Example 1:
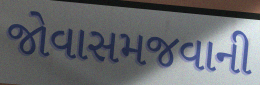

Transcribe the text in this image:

જોવાસમજવાની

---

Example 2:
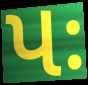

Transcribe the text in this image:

પઃ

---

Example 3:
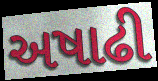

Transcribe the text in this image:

અષાઢી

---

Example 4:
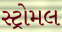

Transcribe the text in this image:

સ્ટ્રોમલ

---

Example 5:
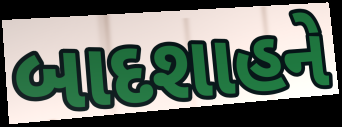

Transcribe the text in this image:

બાદશાહને